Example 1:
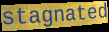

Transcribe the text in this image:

stagnated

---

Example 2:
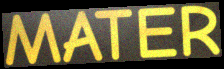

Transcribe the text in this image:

MATER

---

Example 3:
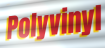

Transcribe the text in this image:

Polyvinyl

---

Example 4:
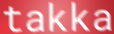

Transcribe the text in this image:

takka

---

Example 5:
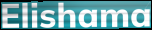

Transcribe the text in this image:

Elishama